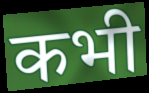
कभी